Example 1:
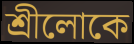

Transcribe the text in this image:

শ্রীলোকে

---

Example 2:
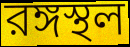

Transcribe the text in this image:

রঙ্গস্থল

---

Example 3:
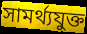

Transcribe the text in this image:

সামর্থ্যযুক্ত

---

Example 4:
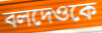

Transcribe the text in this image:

বলদেওকে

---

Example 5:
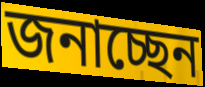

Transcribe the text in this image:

জনাচ্ছেন